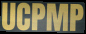
UCPMP